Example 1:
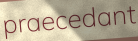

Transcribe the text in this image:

praecedant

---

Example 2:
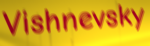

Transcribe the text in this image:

Vishnevsky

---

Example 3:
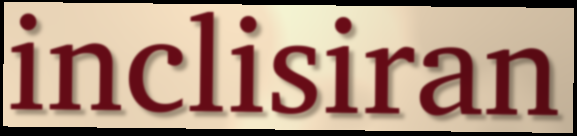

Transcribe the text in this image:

inclisiran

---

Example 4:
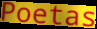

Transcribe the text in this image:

Poetas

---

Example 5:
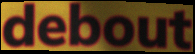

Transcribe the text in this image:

debout